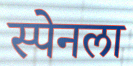
स्पेनला